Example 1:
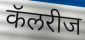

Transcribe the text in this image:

कॅलरीज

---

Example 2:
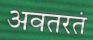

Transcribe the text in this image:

अवतरतं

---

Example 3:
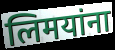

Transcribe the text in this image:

लिमयांना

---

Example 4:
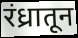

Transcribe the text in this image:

रंध्रातून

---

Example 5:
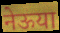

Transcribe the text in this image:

नेऊया